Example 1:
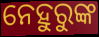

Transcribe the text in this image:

ନେହୁରୁଙ୍କ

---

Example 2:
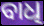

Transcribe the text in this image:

ବାଧି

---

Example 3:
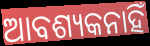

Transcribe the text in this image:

ଆବଶ୍ୟକନାହିଁ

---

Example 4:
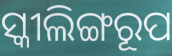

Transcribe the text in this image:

ସ୍କୀଲିଙ୍ଗରୂପ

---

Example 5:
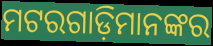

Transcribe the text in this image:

ମଟରଗାଡ଼ିମାନଙ୍କର